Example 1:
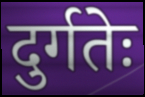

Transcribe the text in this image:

दुर्गतेः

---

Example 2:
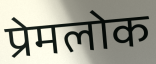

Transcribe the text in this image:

प्रेमलोक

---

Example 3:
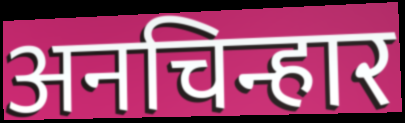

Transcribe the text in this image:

अनचिन्हार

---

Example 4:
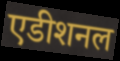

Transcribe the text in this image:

एडीशनल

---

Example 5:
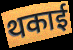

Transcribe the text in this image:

थकाई